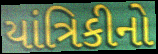
યાંત્રિકીનો